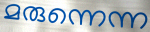
മരുന്നെന്ന